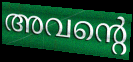
അവന്റെ